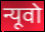
न्यूवो